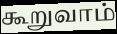
கூறுவாம்